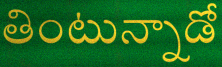
తింటున్నాడో